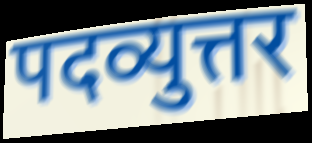
पदव्युत्तर